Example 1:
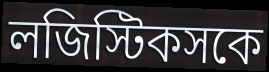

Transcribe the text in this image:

লজিস্টিকসকে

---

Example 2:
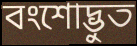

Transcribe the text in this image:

বংশোদ্ভুত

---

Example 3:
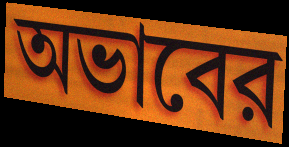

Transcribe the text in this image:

অভাবের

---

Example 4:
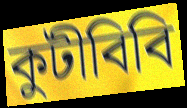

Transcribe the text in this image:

কুটীবিবি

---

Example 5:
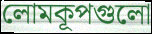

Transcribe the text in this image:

লোমকূপগুলো